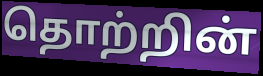
தொற்றின்